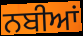
ਨਬੀਆਂ